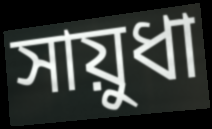
সায়ুধা